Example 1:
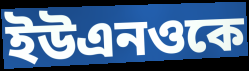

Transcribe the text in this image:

ইউএনওকে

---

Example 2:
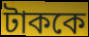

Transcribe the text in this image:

টাককে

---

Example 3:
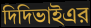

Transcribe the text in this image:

দিদিভাইএর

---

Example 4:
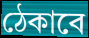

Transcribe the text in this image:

ঠেকাবে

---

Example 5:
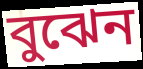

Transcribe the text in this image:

বুঝেন